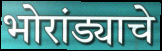
भोरांड्याचे